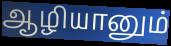
ஆழியானும்